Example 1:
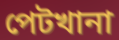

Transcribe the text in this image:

পেটখানা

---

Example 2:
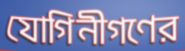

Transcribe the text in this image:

যোগিনীগণের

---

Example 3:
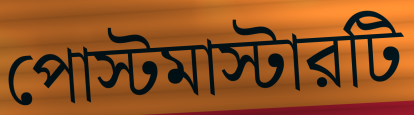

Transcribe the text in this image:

পোস্টমাস্টারটি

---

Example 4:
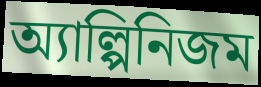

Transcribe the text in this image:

অ্যাল্পিনিজম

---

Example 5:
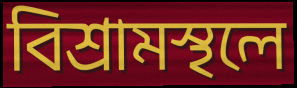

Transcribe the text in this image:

বিশ্রামস্থলে